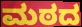
ಮಠದ